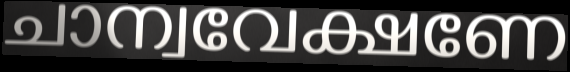
ചാന്വവേക്ഷണേ